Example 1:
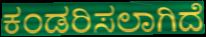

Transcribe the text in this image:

ಕಂಡರಿಸಲಾಗಿದೆ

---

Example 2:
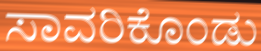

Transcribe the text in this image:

ಸಾವರಿಕೊಂಡು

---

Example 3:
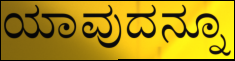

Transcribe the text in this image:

ಯಾವುದನ್ನೂ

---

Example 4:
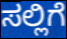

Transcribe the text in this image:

ಸಲ್ಲಿಗೆ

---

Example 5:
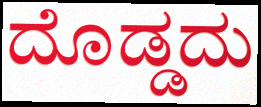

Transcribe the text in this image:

ದೊಡ್ಡದು